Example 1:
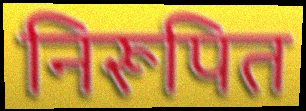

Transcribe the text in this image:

निरूपित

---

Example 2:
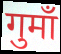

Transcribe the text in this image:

गुमाँ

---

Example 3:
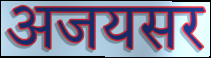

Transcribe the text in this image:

अजयसर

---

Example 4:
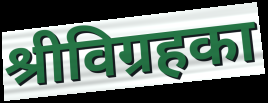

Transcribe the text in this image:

श्रीविग्रहका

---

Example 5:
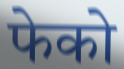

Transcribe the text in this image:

फेको